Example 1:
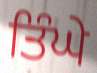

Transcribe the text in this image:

ਤਿੰਘੇ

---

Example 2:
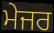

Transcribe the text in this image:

ਮੇਜਰ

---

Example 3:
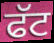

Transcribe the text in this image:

ਫੱਟ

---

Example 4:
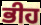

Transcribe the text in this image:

ਭੀਹ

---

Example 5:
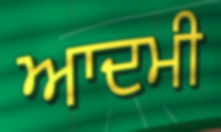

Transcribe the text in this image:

ਆਦਮੀ